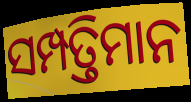
ସମ୍ପତ୍ତିମାନ